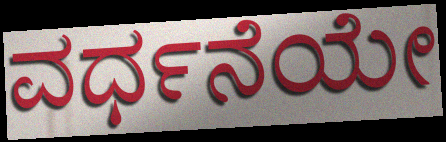
ವರ್ಧನೆಯೇ